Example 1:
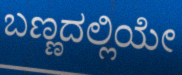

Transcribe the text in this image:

ಬಣ್ಣದಲ್ಲಿಯೇ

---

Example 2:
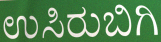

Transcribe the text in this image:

ಉಸಿರುಬಿಗಿ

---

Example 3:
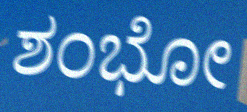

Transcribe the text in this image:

ಶಂಭೋ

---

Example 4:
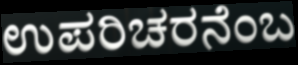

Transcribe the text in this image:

ಉಪರಿಚರನೆಂಬ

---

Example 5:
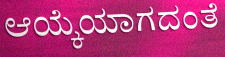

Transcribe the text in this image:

ಆಯ್ಕೆಯಾಗದಂತೆ